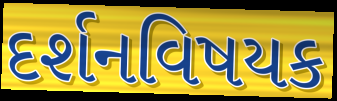
દર્શનવિષયક